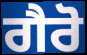
ਗੈਰੋ